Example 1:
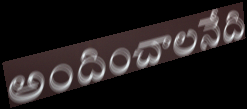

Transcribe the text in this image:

అందించాలనేది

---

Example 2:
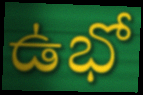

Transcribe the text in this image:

ఉభో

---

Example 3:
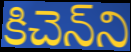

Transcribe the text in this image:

కిచెన్‌ని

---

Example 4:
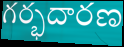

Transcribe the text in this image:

గర్భదారణ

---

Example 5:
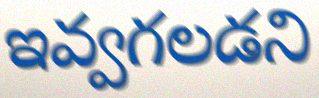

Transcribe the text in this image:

ఇవ్వగలడని